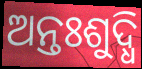
ଅନ୍ତଃଶୁଦ୍ଧି